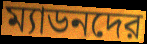
ম্যাডনদের